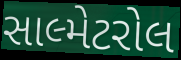
સાલ્મેટરોલ